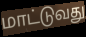
மாட்டுவது